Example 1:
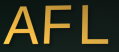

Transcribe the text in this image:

AFL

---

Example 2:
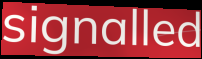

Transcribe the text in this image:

signalled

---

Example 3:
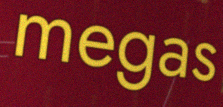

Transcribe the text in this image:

megas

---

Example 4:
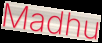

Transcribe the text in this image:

Madhu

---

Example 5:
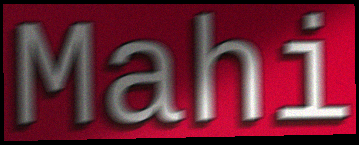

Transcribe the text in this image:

Mahi